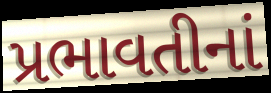
પ્રભાવતીનાં